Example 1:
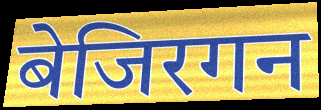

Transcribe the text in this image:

बेजिरगन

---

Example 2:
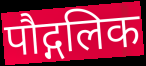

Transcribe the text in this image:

पौद्गलिक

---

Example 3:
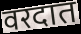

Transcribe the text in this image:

वरदात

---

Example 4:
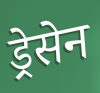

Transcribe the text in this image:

ड्रेसेन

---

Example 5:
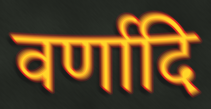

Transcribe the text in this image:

वर्णादि